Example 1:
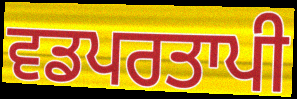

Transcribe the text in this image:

ਵਡਪਰਤਾਪੀ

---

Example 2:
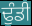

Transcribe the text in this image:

ਢੁੰਡੀ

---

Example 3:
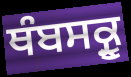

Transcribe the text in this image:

ਥੰਬਸਕ੍ਰੂ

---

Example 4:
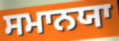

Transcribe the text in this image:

ਸਮਾਨਯਾ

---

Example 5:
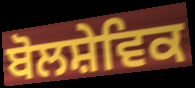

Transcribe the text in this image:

ਬੋਲਸ਼ੇਵਿਕ